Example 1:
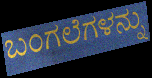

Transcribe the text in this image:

ಬಂಗಲೆಗಳನ್ನು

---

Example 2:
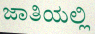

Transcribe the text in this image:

ಜಾತಿಯಲ್ಲಿ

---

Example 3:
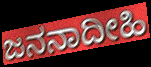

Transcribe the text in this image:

ಜನನಾದೀಹಿ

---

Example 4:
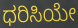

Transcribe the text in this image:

ಧರಿಸಿಯೇ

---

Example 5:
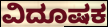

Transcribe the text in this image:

ವಿದೂಷಕ